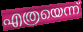
എത്രയെന്ന്